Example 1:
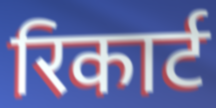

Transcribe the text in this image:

रिकार्ट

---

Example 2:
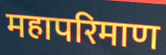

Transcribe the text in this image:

महापरिमाण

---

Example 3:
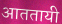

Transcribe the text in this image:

आततायी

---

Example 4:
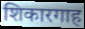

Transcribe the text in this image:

शिकारगाह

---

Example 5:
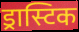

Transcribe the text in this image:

ड्रास्टिक